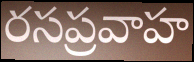
రసప్రవాహ